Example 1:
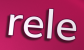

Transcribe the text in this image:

rele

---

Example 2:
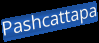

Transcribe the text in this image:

Pashcattapa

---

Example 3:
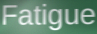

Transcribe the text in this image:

Fatigue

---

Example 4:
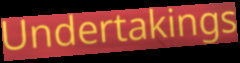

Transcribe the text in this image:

Undertakings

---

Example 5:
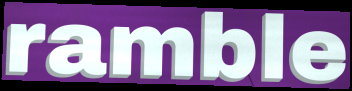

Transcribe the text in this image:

ramble